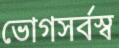
ভোগসর্বস্ব